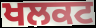
ਖਲਕਟ